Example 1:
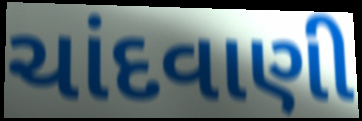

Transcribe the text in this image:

ચાંદવાણી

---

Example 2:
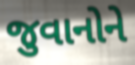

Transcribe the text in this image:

જુવાનોને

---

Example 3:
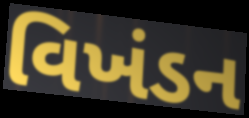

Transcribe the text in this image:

વિખંડન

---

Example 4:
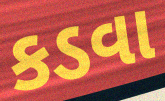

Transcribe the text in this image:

કડવા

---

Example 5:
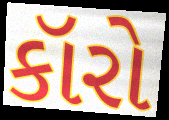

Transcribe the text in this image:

કૉરો